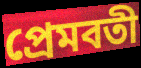
প্রেমবতী